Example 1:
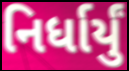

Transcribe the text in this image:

નિર્ધાર્યું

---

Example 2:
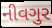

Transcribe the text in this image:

નીવગુર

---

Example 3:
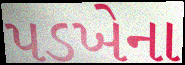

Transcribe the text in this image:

પડખેના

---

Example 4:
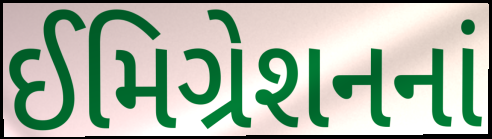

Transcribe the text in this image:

ઈમિગ્રેશનનાં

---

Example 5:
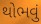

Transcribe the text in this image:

થોભવું